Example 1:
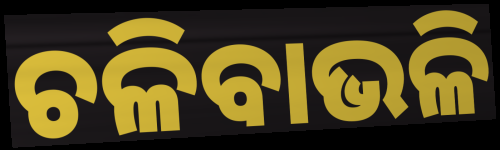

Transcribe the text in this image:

ଚଳିବାଭଳି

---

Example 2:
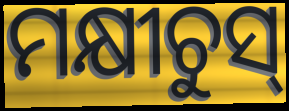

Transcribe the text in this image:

ମକ୍ଷୀଚୁସ୍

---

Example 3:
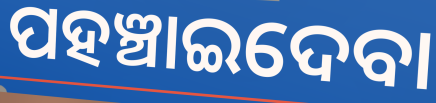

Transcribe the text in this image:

ପହଞ୍ଚାଇଦେବା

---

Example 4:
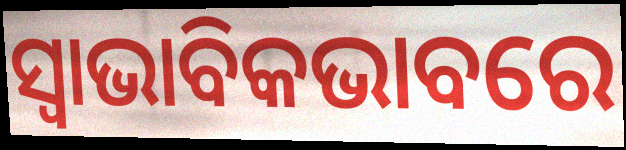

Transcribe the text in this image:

ସ୍ୱାଭାବିକଭାବରେ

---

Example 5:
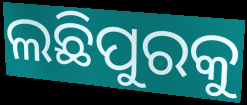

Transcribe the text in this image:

ଲଛିପୁରକୁ